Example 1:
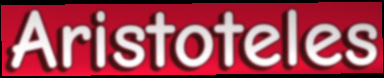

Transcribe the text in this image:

Aristoteles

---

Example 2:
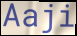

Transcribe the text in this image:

Aaji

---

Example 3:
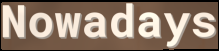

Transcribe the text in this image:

Nowadays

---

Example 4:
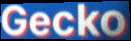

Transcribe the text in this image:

Gecko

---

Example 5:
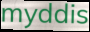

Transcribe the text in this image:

myddis